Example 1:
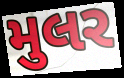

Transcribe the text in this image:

મુલર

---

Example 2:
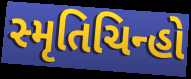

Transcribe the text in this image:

સ્મૃતિચિન્હો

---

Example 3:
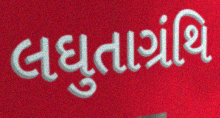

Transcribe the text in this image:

લઘુતાગ્રંથિ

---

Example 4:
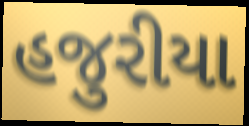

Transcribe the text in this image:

હજુરીયા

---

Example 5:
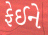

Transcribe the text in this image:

ફેઈને